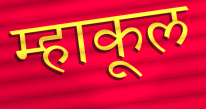
म्हाकूल